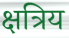
क्षत्रिय